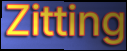
Zitting